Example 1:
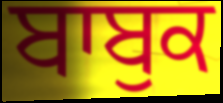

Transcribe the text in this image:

ਬਾਬੁਕ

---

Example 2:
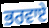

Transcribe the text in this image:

ਭਰਵਾਏ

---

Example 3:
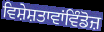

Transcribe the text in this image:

ਵਿਸ਼ੇਸ਼ਤਾਵਾਂਵਿੰਡੋਜ਼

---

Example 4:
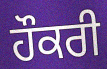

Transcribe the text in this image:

ਹੌਕਰੀ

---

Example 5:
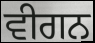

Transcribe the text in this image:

ਵੀਗਨ